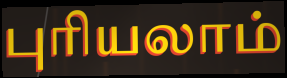
புரியலாம்